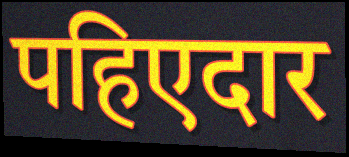
पहिएदार